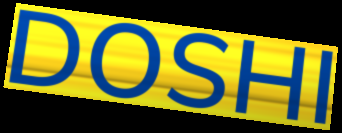
DOSHI